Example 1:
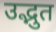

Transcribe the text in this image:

उद्भुत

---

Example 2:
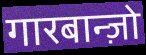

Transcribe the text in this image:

गारबान्ज़ो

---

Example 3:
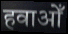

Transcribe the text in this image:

हवाओँ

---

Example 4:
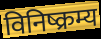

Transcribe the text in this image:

विनिष्क्रम्य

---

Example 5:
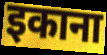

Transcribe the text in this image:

इकाना